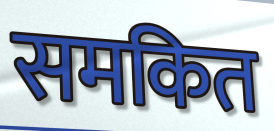
समकित